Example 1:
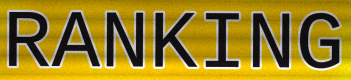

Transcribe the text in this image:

RANKING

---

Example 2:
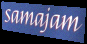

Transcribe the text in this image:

samajam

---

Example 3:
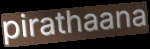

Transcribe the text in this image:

pirathaana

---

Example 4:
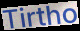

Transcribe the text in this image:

Tirtho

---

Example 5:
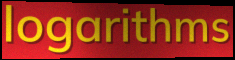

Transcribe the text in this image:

logarithms